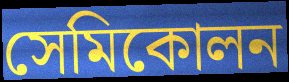
সেমিকোলন